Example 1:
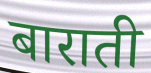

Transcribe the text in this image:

बाराती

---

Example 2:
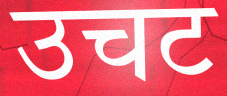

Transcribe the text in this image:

उचट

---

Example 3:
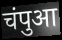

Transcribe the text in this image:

चंपुआ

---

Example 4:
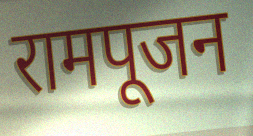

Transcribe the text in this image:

रामपूजन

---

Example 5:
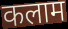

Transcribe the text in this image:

कलाम